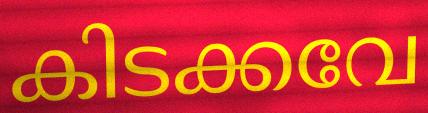
കിടക്കവേ